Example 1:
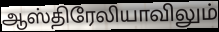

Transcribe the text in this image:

ஆஸ்திரேலியாவிலும்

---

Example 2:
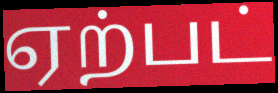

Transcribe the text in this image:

ஏற்பட்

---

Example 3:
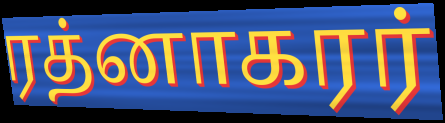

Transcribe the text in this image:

ரத்னாகரர்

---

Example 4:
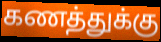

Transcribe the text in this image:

கணத்துக்கு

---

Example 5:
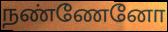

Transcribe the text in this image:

நண்ணேனோ